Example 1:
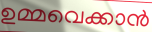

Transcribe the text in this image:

ഉമ്മവെക്കാൻ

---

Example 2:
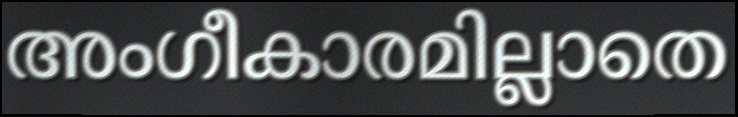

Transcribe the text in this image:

അംഗീകാരമില്ലാതെ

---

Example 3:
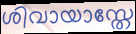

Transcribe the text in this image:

ശിവായാസ്തേ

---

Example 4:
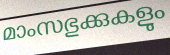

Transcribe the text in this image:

മാംസഭുക്കുകളും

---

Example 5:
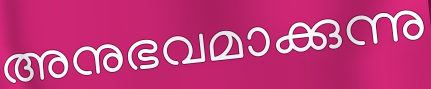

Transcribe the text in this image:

അനുഭവമാക്കുന്നു